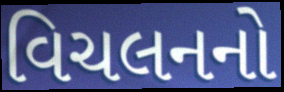
વિચલનનો